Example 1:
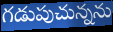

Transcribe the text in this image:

గడుపుచున్నను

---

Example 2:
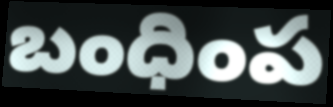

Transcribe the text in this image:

బంధింప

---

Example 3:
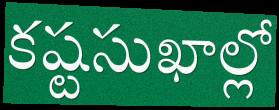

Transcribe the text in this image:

కష్టసుఖాల్లో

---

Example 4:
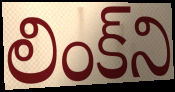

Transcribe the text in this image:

లింక్‌ని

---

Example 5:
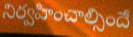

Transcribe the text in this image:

నిర్వహించాల్సిందే